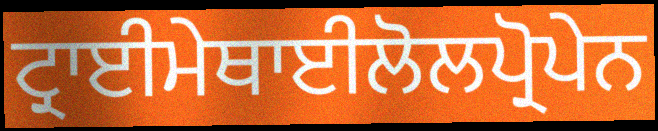
ਟ੍ਰਾਈਮੇਥਾਈਲੋਲਪ੍ਰੋਪੇਨ